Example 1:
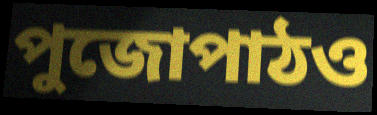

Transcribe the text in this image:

পুজোপাঠও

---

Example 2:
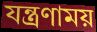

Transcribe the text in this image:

যন্ত্রণাময়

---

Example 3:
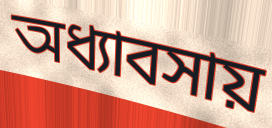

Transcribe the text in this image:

অধ্যাবসায়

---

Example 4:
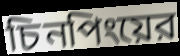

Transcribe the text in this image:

চিনপিংয়ের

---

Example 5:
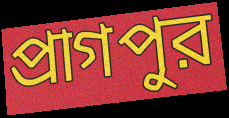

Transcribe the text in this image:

প্রাগপুর